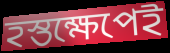
হস্তক্ষেপেই